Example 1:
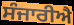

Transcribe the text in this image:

ਸੰਜਾਰੀਐ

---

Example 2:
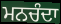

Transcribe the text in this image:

ਮਨਚੰਦਾ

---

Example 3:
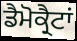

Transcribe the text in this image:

ਡੈਮੋਕ੍ਰੈਟਾਂ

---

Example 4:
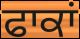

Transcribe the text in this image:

ਫਾਕਾਂ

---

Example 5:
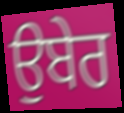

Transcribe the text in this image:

ਉਬੇਰ